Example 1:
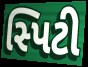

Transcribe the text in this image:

સ્પિટી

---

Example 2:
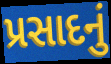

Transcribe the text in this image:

પ્રસાદનું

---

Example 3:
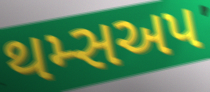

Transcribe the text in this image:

થમ્સઅપ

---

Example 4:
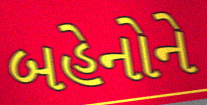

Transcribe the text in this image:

બહેનોને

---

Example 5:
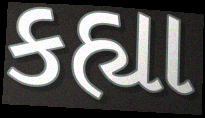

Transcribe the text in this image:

કહ્યા